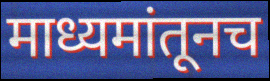
माध्यमांतूनच